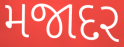
મજાદર